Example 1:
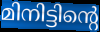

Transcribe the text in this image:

മിനിട്ടിന്റെ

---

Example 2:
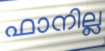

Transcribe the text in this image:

ഫാനില്ല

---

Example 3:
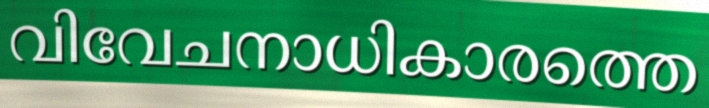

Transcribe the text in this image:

വിവേചനാധികാരത്തെ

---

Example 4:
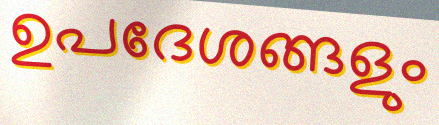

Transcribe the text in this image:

ഉപദേശങ്ങളും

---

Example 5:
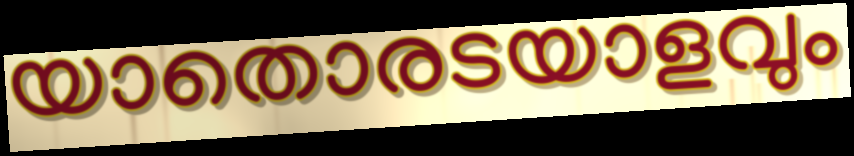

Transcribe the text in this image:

യാതൊരടയാളവും